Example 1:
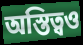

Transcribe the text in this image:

অস্তিত্বও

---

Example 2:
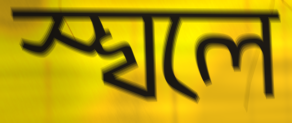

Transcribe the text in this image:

স্খলে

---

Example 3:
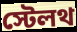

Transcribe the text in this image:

স্টেলথ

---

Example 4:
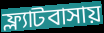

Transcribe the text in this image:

ফ্ল্যাটবাসায়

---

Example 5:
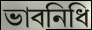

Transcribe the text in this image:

ভাবনিধি